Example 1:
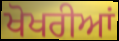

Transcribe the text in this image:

ਖੋਖਰੀਆਂ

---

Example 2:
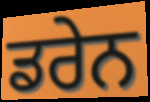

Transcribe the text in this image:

ਡਰੇਨ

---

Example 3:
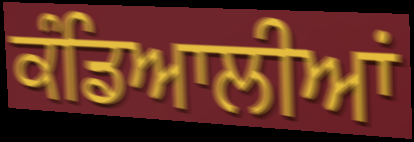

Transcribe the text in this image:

ਕੰਡਿਆਲੀਆਂ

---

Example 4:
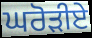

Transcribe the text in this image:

ਘਰੋੜੀਏ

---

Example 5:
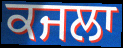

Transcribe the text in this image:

ਕਜਲਾ